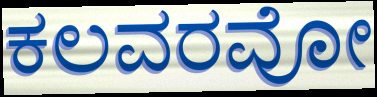
ಕಲವರವೋ